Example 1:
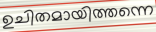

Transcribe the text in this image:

ഉചിതമായിത്തന്നെ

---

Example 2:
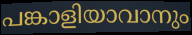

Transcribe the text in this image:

പങ്കാളിയാവാനും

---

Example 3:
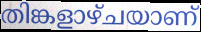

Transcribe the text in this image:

തിങ്കളാഴ്ചയാണ്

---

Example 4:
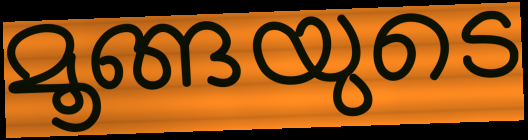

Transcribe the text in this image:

മൂങ്ങയുടെ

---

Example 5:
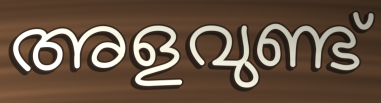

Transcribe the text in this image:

അളവുണ്ട്